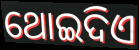
ଥୋଇଦିଏ